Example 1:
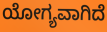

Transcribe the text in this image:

ಯೋಗ್ಯವಾಗಿದೆ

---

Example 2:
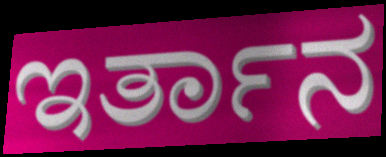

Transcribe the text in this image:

ಇರ್ತಾನ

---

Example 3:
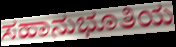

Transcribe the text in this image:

ಸಹಾನುಭೂತಿಯ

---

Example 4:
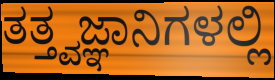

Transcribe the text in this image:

ತತ್ತ್ವಜ್ಞಾನಿಗಳಲ್ಲಿ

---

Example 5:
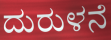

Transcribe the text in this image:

ದುರುಳನೆ